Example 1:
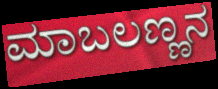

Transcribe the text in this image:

ಮಾಬಲಣ್ಣನ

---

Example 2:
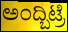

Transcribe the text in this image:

ಅಂದ್ಬಿಟ್ರೆ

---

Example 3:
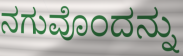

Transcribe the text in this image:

ನಗುವೊಂದನ್ನು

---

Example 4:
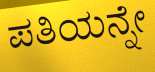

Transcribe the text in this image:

ಪತಿಯನ್ನೇ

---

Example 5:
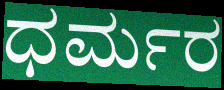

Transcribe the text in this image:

ಧರ್ಮರ